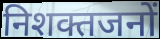
निशक्तजनों